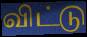
விட்டு